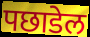
पछाडेल